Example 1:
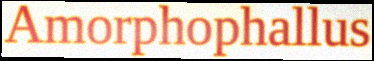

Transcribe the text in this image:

Amorphophallus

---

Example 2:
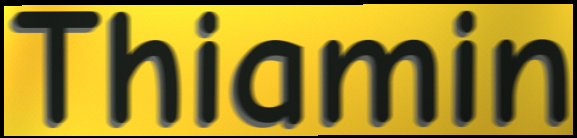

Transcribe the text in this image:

Thiamin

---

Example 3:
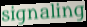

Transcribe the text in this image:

signaling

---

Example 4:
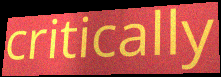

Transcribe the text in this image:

critically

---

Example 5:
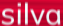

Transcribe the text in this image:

silva